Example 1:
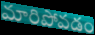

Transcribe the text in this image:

మారిపోవడం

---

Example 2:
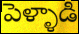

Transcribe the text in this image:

పెళ్ళాడి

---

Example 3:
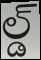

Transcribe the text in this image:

ల్డ్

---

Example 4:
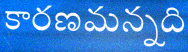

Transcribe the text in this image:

కారణమన్నది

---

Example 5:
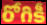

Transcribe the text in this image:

రోగికీ